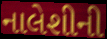
નાલેશીની